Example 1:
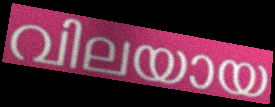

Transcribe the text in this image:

വിലയായ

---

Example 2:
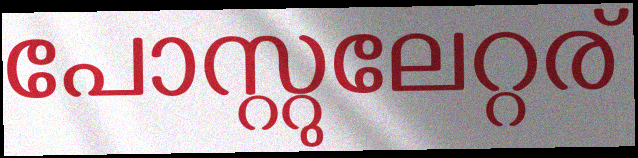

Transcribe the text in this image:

പോസ്റ്റുലേറ്റര്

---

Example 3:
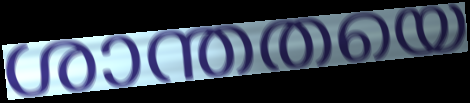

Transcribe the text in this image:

ശാന്തതയെ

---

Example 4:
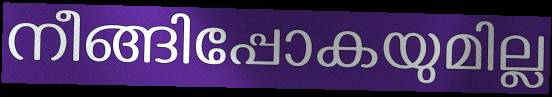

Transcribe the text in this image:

നീങ്ങിപ്പോകയുമില്ല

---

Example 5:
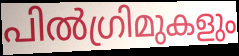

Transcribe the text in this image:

പിൽഗ്രിമുകളും